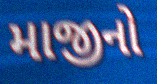
માજીનો